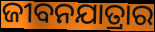
ଜୀବନଯାତ୍ରାର